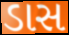
ડાસ